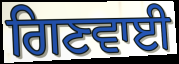
ਗਿਣਵਾਈ